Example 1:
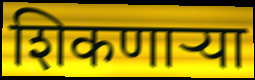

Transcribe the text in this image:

शिकणार्‍या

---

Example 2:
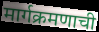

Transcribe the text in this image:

मार्गक्रमणाची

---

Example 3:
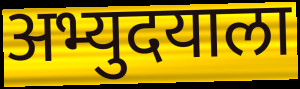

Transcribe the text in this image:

अभ्युदयाला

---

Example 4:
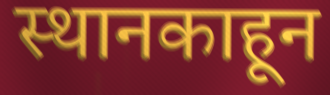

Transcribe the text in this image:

स्थानकाहून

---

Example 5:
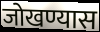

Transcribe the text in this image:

जोखण्यास